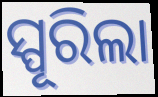
ସ୍ପୂରିଲା